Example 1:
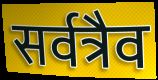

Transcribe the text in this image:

सर्वत्रैव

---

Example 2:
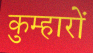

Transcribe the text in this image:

कुम्हारों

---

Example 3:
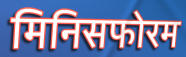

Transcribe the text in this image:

मिनिसफोरम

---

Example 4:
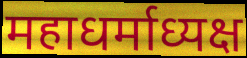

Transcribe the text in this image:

महाधर्माध्यक्ष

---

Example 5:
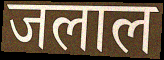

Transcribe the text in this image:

जलाल